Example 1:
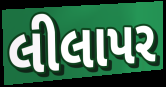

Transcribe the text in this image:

લીલાપર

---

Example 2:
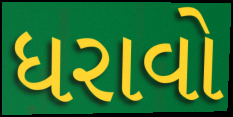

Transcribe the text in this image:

ધરાવો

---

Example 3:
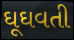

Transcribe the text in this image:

ઘૂઘવતી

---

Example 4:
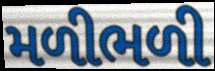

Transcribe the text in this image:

મળીભળી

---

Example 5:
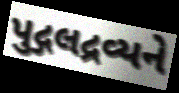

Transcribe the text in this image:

પુદ્ગલદ્રવ્યને